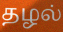
தழல்